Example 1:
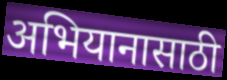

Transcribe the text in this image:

अभियानासाठी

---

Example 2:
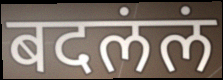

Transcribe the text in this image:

बदलंलं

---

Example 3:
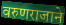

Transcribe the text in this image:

वरुणराजाने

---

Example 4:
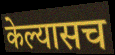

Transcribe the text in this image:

केल्यासच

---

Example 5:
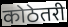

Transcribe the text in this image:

कोठेतरी